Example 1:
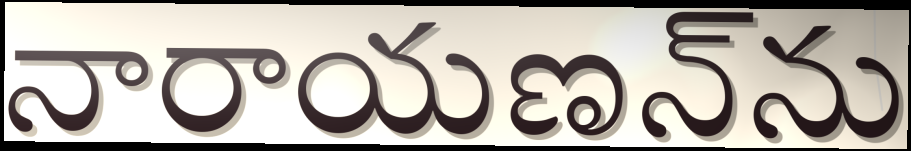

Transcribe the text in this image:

నారాయణన్‌ను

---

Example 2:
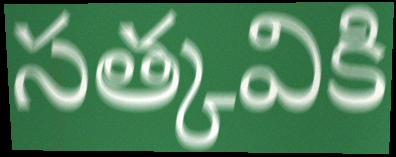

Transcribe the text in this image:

సత్కవికి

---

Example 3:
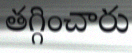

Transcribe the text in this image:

తగ్గించారు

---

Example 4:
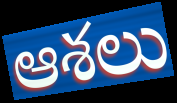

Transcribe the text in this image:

ఆశలు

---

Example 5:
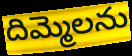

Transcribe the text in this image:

దిమ్మెలను